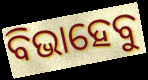
ବିଭାହେବୁ